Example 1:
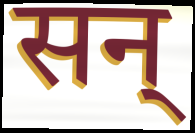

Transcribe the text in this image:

सन्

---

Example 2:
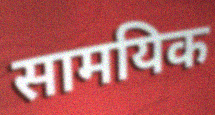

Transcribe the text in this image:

सामयिक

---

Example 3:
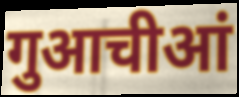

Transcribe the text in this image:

गुआचीआं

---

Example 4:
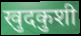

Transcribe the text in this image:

खुदकुशी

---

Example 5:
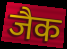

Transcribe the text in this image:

जैक